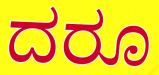
ದರೂ